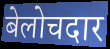
बेलोचदार